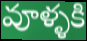
వూళ్ళకి